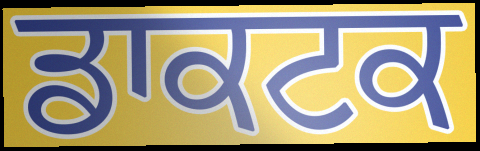
ਡਾਕਟਕ